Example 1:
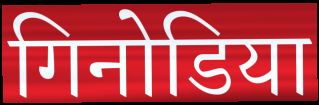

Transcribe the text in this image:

गिनोडिया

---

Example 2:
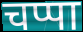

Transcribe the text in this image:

चप्पा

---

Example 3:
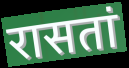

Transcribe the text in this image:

रासतां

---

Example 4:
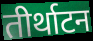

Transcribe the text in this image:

तीर्थाटन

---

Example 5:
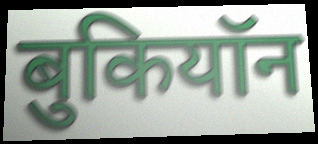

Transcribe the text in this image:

बुकियॉन